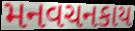
મનવચનકાય